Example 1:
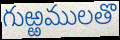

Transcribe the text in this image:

గుఱ్ఱములతొ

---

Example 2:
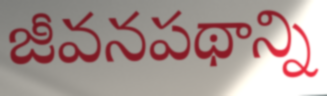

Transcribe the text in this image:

జీవనపథాన్ని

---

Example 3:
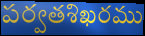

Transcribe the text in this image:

పర్వతశిఖరము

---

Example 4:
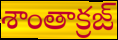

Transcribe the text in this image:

శాంతాక్రజ్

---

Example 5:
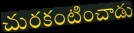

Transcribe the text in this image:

చురకంటించాడు